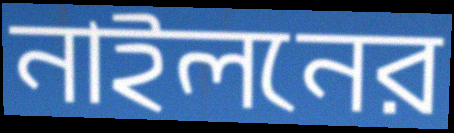
নাইলনের